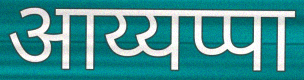
आय्यप्पा